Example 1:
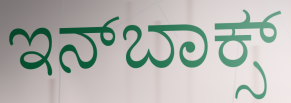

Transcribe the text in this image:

ಇನ್‍ಬಾಕ್ಸ್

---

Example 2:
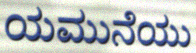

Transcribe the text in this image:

ಯಮುನೆಯು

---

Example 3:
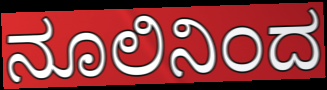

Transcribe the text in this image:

ನೂಲಿನಿಂದ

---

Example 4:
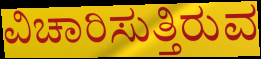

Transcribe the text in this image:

ವಿಚಾರಿಸುತ್ತಿರುವ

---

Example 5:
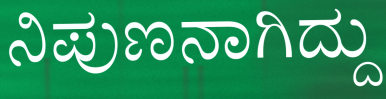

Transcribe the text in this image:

ನಿಪುಣನಾಗಿದ್ದು